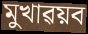
মুখাৱয়ব